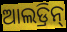
ଆଲଡ୍ରିନ୍